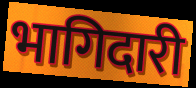
भागिदारी